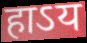
हाऽय